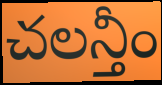
చలన్తీం